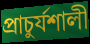
প্রাচুর্যশালী